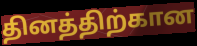
தினத்திற்கான